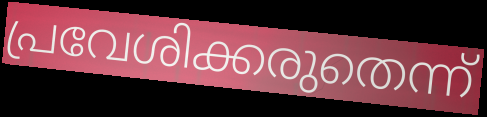
പ്രവേശിക്കരുതെന്ന്